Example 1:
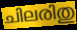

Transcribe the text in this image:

ചിലരിതു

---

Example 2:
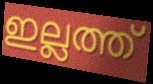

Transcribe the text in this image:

ഇല്ലത്ത്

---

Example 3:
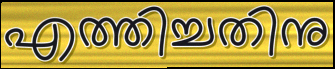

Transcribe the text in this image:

എത്തിച്ചതിനു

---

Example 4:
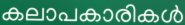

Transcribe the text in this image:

കലാപകാരികൾ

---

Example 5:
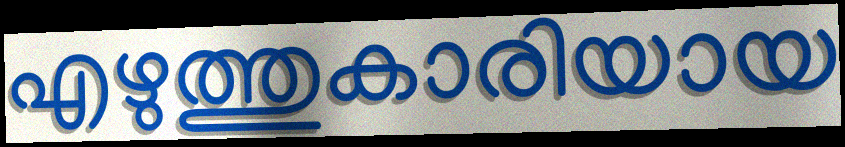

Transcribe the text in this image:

എഴുത്തുകാരിയായ